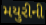
મયુરીની